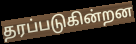
தரப்படுகின்றன